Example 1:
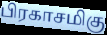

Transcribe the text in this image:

பிரகாசமிகு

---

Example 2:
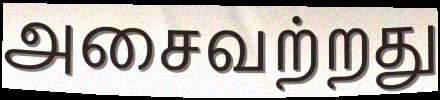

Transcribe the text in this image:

அசைவற்றது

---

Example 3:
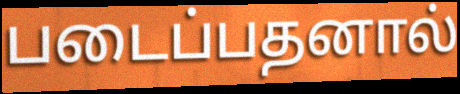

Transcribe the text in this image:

படைப்பதனால்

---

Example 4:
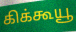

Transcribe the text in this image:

கிக்கூயூ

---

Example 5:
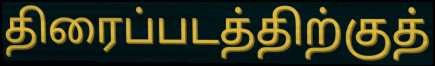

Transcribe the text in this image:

திரைப்படத்திற்குத்